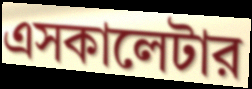
এসকালেটার